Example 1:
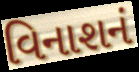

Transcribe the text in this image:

વિનાશનં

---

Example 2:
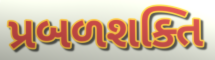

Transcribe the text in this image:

પ્રબળશક્તિ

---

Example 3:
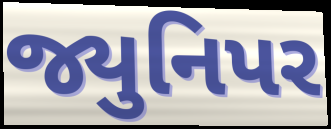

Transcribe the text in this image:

જ્યુનિપર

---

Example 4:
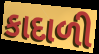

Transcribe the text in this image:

કાદાળી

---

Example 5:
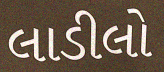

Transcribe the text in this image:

લાડીલો